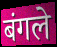
बंगले